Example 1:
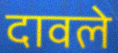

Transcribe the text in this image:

दावले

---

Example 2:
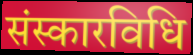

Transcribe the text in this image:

संस्कारविधि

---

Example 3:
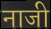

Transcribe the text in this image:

नाजी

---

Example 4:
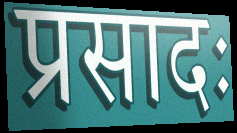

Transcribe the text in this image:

प्रसादः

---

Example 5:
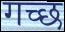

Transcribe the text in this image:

गच्छ